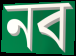
নব